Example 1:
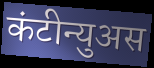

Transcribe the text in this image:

कंटीन्युअस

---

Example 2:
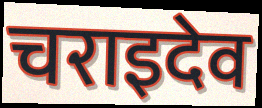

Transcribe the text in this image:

चराइदेव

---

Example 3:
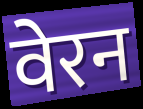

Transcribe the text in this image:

वेरन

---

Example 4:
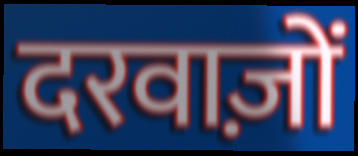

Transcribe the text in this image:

दरवाज़ों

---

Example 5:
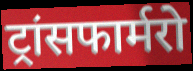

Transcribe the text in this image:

ट्रांसफार्मरो